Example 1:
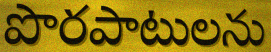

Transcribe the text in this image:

పొరపాటులను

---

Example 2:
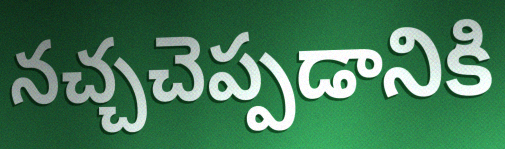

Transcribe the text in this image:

నచ్చచెప్పడానికి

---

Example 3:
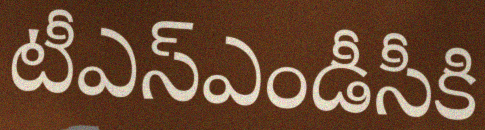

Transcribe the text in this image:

టీఎస్ఎండీసీకి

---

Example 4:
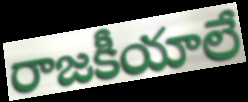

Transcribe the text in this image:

రాజకీయాలే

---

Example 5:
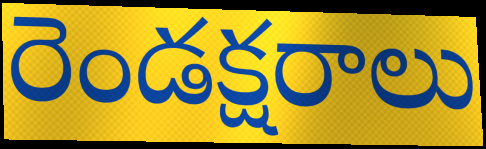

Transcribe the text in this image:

రెండక్షరాలు